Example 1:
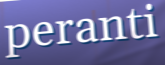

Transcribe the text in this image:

peranti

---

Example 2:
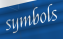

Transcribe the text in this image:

symbols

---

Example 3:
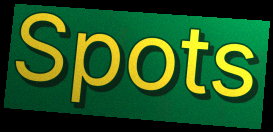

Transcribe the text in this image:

Spots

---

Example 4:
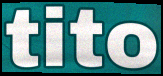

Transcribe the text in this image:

tito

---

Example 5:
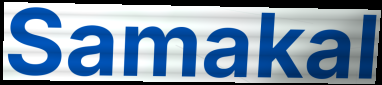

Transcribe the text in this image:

Samakal